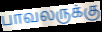
பாவலருக்கு